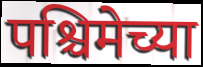
पश्चिमेच्या